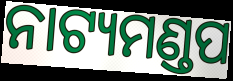
ନାଟ୍ୟମଣ୍ଡପ